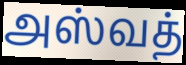
அஸ்வத்